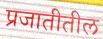
प्रजातीतील